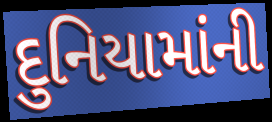
દુનિયામાંની